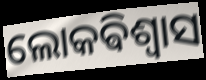
ଲୋକଵିଶ୍ଵାସ